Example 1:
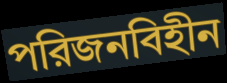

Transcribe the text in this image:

পরিজনবিহীন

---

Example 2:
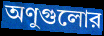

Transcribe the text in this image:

অণুগুলোর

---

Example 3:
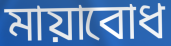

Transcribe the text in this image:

মায়াবোধ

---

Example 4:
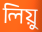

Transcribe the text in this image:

লিয়ু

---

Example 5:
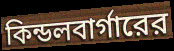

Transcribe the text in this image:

কিন্ডলবার্গারের